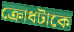
ক্রোধটাকে